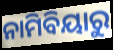
ନାମିବିୟାରୁ